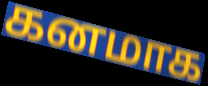
கனமாக